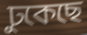
ঢুকেছে